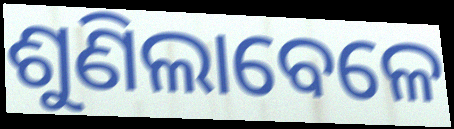
ଶୁଣିଲାବେଳେ